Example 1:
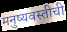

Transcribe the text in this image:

मनुष्यवस्तीची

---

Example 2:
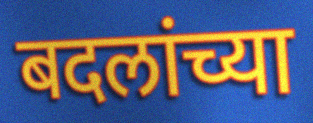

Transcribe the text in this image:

बदलांच्या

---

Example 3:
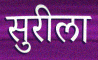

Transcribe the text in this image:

सुरीला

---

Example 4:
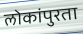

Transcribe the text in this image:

लोकांपुरता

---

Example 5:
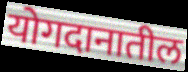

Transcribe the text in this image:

योगदानातील